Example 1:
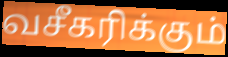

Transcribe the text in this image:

வசீகரிக்கும்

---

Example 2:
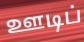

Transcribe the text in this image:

ஊடிப்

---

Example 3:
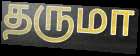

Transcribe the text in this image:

தருமா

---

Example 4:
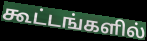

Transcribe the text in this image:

கூட்டங்களில்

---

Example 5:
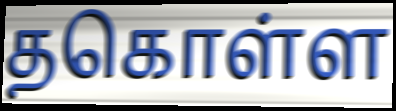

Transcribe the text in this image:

தகொள்ள